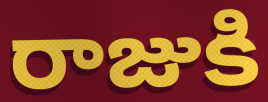
రాజుకి